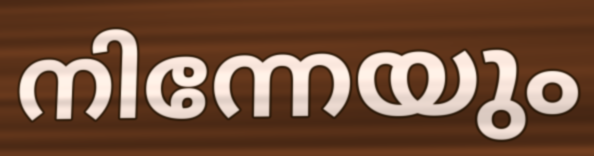
നിന്നേയും